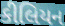
કીલિયન